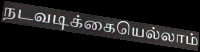
நடவடிக்கையெல்லாம்